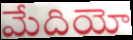
మేదియో